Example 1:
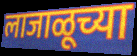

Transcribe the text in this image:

लाजाळूच्या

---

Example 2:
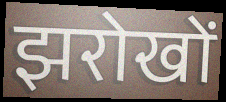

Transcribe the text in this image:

झरोखों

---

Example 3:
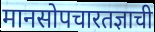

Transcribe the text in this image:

मानसोपचारतज्ञाची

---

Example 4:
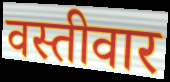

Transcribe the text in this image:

वस्तीवार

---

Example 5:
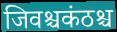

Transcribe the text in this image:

जिवश्चकंठश्च